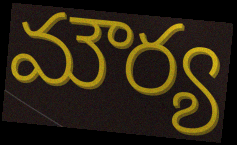
మౌర్య